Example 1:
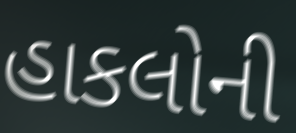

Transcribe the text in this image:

હાકલોની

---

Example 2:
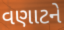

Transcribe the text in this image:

વણાટને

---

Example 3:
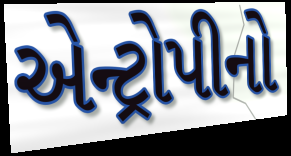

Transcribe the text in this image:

એન્ટ્રોપીનો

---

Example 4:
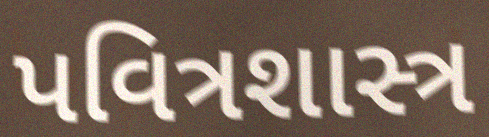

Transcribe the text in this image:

પવિત્રશાસ્ત્ર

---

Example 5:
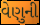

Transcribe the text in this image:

વેણુની